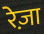
रेज़ा